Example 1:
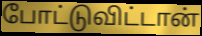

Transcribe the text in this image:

போட்டுவிட்டான்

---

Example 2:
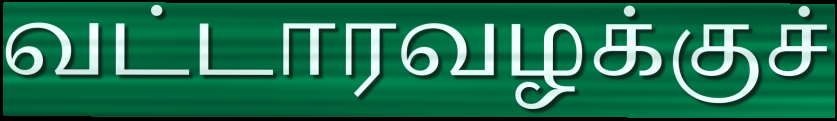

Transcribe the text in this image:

வட்டாரவழக்குச்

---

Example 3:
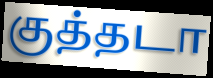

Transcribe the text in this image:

குத்தடா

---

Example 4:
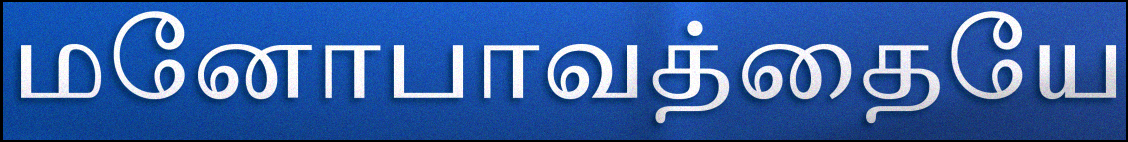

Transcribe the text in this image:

மனோபாவத்தையே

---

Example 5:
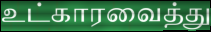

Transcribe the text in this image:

உட்காரவைத்து